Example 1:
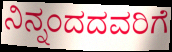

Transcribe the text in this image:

ನಿನ್ನಂದದವರಿಗೆ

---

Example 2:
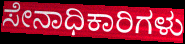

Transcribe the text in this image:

ಸೇನಾಧಿಕಾರಿಗಳು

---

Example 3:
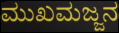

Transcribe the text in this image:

ಮುಖಮಜ್ಜನ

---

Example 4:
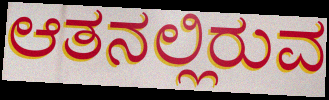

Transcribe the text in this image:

ಆತನಲ್ಲಿರುವ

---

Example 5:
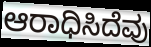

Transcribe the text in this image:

ಆರಾಧಿಸಿದೆವು